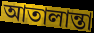
আতালান্তা